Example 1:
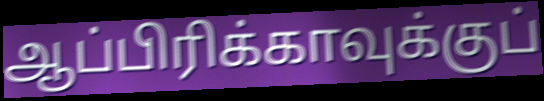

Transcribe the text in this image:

ஆப்பிரிக்காவுக்குப்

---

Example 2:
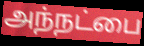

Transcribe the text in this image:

அந்நட்பை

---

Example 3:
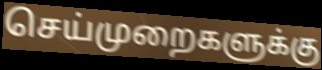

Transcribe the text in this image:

செய்முறைகளுக்கு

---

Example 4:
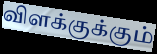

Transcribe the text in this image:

விளக்குக்கும்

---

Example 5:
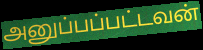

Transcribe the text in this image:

அனுப்பப்பட்டவன்